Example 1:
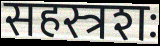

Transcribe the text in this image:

सहस्त्रशः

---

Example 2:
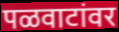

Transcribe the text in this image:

पळवाटांवर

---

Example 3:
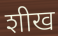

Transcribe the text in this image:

शीख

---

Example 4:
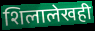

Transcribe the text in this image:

शिलालेखही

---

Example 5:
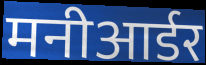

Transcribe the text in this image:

मनीआर्डर